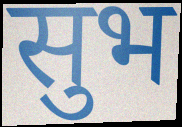
सुभ